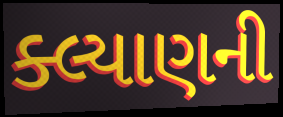
ક્લ્યાણની